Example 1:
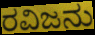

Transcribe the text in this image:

ರವಿಜನು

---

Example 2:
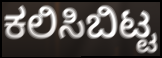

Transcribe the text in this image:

ಕಲಿಸಿಬಿಟ್ಟ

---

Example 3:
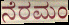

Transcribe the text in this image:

ನೆರಮಂ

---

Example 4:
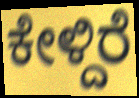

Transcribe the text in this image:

ಕೇಳ್ದಿರೆ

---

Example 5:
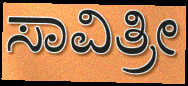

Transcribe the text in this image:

ಸಾವಿತ್ರೀ